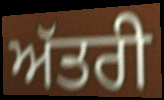
ਅੱਤਰੀ